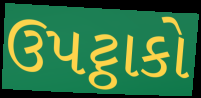
ઉપટ્ઠાકો